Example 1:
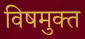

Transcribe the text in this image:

विषमुक्त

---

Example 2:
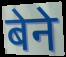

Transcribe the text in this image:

बेने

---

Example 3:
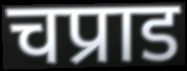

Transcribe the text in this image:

चप्राड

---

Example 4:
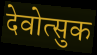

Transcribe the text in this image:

देवोत्सुक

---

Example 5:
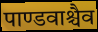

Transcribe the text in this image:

पाण्डवाश्चैव